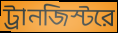
ট্রানজিস্টরে